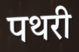
पथरी